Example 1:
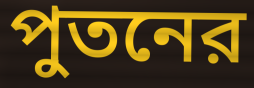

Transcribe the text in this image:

পুতনের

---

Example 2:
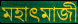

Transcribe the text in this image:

মহাৎমাজী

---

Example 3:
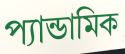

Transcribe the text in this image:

প্যান্ডামিক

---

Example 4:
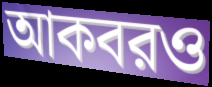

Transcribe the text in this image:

আকবরও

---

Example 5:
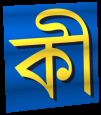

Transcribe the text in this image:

কী